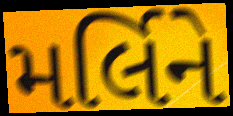
મર્લિને